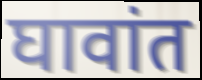
घावांत